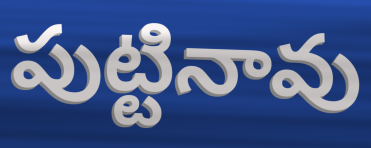
పుట్టినావు